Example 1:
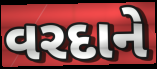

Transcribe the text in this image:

વરદાને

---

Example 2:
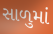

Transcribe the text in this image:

સાળુમાં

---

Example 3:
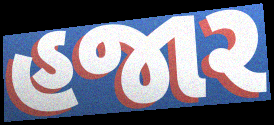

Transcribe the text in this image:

હજાર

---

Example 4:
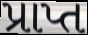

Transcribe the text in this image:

પ્રાપ્‍ત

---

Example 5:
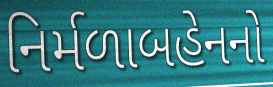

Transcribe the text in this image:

નિર્મળાબહેનનો